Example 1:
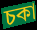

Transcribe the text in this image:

চকা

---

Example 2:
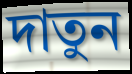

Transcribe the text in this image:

দাতুন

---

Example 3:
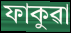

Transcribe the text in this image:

ফাকুৱা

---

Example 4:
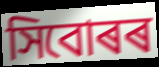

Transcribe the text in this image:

সিবোৰৰ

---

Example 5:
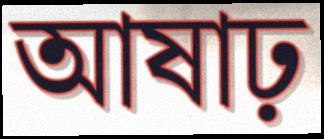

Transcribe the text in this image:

আষাঢ়